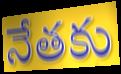
నేతకు